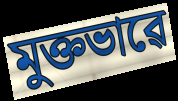
মুক্তভাৱে